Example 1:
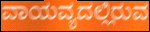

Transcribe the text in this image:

ವಾಯವ್ಯದಲ್ಲಿರುವ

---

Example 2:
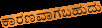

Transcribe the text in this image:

ಕಾರಣವಾಗಬಹುದು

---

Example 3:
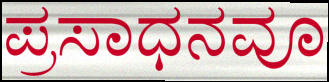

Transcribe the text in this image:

ಪ್ರಸಾಧನವೂ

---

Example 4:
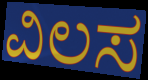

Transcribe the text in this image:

ವಿಲಸ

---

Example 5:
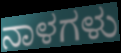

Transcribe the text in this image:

ನಾಳಗಳು